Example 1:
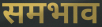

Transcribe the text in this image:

समभाव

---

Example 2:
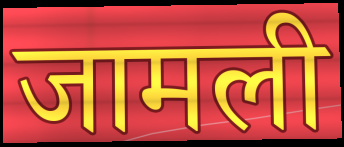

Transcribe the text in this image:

जामली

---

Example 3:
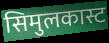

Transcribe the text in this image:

सिमुलकास्ट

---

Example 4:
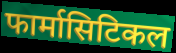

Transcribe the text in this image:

फार्मासिटिकल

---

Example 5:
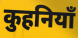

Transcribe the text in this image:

कुहनियाँ